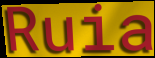
Ruia